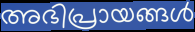
അഭിപ്രായങ്ങൾ